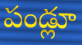
పండ్లూ